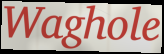
Waghole